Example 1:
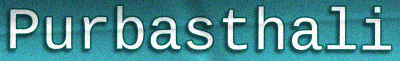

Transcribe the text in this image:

Purbasthali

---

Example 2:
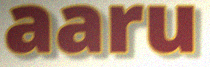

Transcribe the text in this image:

aaru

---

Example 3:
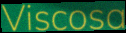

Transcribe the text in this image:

Viscosa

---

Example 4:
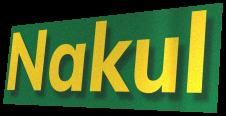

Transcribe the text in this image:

Nakul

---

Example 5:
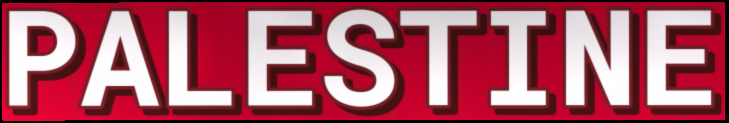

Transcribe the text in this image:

PALESTINE